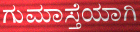
ಗುಮಾಸ್ತೆಯಾಗಿ